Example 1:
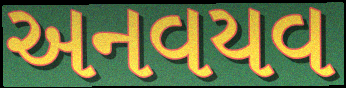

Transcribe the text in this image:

અનવયવ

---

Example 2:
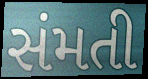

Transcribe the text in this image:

સંમતી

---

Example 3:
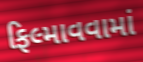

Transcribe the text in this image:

ફિલ્માવવામાં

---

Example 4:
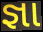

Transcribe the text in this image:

જ્ઞા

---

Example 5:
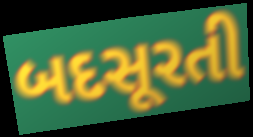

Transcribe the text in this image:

બદસૂરતી